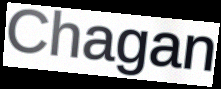
Chagan